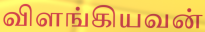
விளங்கியவன்